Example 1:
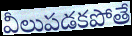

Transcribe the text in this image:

వీలుపడకపోతే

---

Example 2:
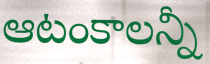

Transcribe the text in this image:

ఆటంకాలన్నీ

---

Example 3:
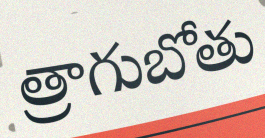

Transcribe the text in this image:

త్రాగుబోతు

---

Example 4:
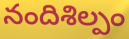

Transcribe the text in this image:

నందిశిల్పం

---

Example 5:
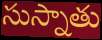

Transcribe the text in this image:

సుస్నాతు